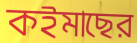
কইমাছের